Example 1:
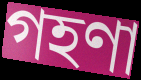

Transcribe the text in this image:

গহণা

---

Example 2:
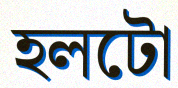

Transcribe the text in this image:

হলটো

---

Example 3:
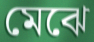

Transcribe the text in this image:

মেঝে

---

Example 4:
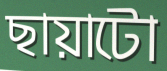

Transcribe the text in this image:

ছায়াটো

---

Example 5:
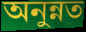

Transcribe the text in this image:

অনুন্নত